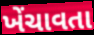
ખેંચાવતા